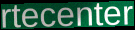
rtecenter